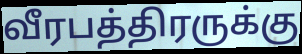
வீரபத்திரருக்கு